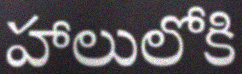
హాలులోకి